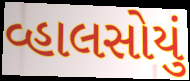
વ્હાલસોયું